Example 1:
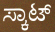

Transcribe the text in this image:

ಸ್ಕಾಟ್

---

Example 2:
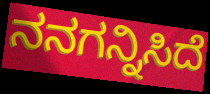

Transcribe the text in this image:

ನನಗನ್ನಿಸಿದೆ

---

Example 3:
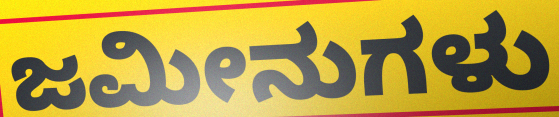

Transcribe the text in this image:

ಜಮೀನುಗಳು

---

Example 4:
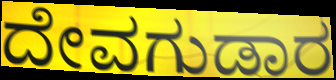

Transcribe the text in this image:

ದೇವಗುಡಾರ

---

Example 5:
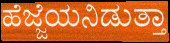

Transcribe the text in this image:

ಹೆಜ್ಜೆಯನಿಡುತ್ತಾ